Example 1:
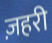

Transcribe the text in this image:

ज़हरी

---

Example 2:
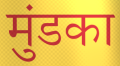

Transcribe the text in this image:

मुंडका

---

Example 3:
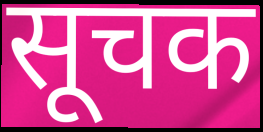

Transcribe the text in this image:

सूचक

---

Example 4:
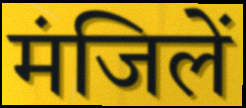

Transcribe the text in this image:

मंजिलें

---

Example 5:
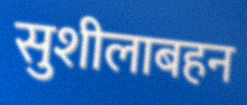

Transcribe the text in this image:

सुशीलाबहन